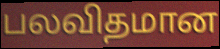
பலவிதமான